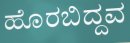
ಹೊರಬಿದ್ದವ